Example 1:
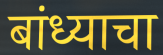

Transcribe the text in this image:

बांध्याचा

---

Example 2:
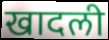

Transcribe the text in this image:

खादली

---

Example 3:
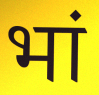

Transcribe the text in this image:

भां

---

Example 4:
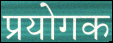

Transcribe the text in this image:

प्रयोगक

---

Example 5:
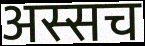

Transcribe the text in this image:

अस्सच